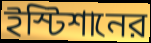
ইস্টিশানের